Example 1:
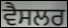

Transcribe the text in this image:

ਵੈਸਲਰ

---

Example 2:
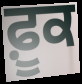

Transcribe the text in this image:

ਫ਼ੂਕ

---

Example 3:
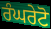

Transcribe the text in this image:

ਰੰਘਰੇਟੋ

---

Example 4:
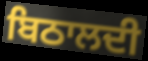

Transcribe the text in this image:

ਬਿਠਾਲਦੀ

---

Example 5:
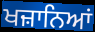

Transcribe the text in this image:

ਖਜ਼ਾਨਿਆਂ